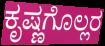
ಕೃಷ್ಣಗೊಲ್ಲರ